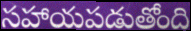
సహాయపడుతోంది